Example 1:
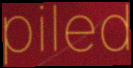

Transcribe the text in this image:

piled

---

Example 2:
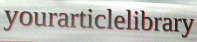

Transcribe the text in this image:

yourarticlelibrary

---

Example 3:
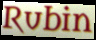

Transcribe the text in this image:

Rubin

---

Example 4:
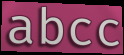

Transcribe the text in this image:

abcc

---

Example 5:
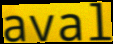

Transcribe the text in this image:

aval